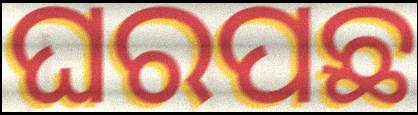
ଘରପଛ